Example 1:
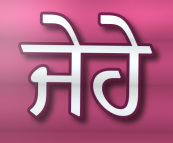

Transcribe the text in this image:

ਜੇਹੇ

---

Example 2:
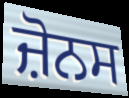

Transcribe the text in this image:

ਜ਼ੋਨਸ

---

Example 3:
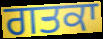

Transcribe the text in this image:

ਗਤਕਾ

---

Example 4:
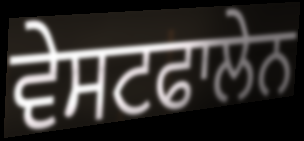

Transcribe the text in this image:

ਵੇਸਟਫਾਲੇਨ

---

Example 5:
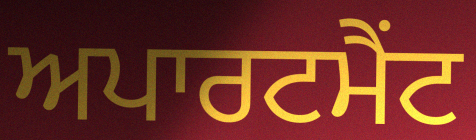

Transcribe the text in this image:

ਅਪਾਰਟਮੈਂਟ